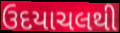
ઉદયાચલથી